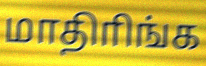
மாதிரிங்க